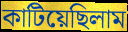
কাটিয়েছিলাম